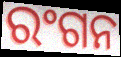
ରଂଗନ